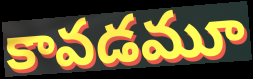
కావడమూ